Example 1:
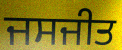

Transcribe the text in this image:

ਜਸਜੀਤ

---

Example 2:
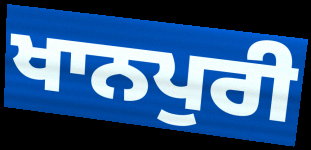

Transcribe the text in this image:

ਖਾਨਪੁਰੀ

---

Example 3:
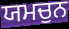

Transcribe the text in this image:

ਯਮਚੁਨ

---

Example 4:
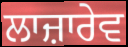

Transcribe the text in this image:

ਲਾਜ਼ਾਰੇਵ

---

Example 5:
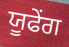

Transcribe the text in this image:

ਯੂਫੇਂਗ